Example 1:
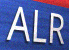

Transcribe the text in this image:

ALR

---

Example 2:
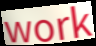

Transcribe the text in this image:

work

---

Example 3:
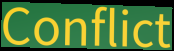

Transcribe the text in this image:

Conflict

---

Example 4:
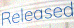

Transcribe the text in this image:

Released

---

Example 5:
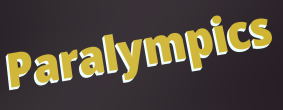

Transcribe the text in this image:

Paralympics